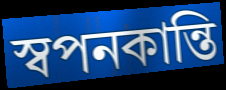
স্বপনকান্তি